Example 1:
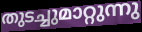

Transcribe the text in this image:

തുടച്ചുമാറ്റുന്നു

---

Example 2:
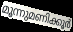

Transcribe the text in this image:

മൂന്നുമണിക്കൂർ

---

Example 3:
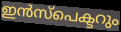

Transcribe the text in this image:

ഇൻസ്പെക്ടറും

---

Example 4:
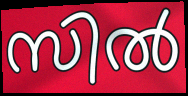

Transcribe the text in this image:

സിൽ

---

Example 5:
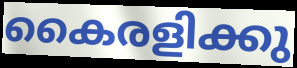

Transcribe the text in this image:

കൈരളിക്കു